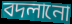
বদলানো